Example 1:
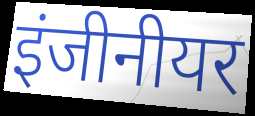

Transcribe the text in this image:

इंजीनीयर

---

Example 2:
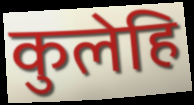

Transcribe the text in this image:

कुलेहि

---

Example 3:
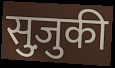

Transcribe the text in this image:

सुज़ुकी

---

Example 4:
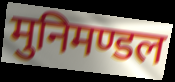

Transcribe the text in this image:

मुनिमण्डल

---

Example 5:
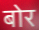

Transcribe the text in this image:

बोर